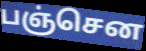
பஞ்சென